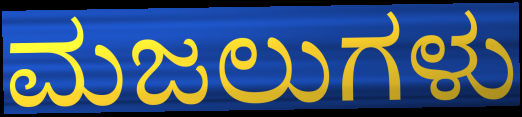
ಮಜಲುಗಳು